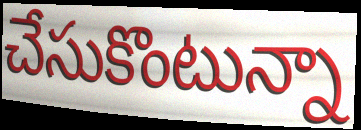
చేసుకొంటున్నా